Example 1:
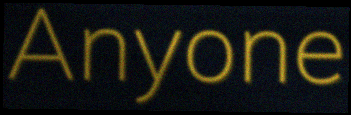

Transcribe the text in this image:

Anyone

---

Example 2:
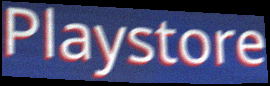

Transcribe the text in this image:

Playstore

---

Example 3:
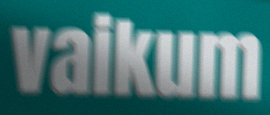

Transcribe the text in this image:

vaikum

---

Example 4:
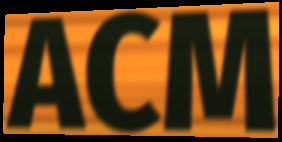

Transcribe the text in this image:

ACM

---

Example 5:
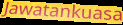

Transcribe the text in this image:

Jawatankuasa